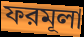
ফরমূলা